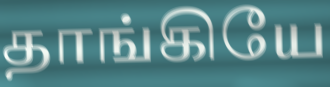
தாங்கியே